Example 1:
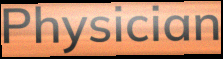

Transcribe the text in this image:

Physician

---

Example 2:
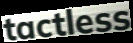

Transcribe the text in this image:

tactless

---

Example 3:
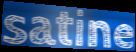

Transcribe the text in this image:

satine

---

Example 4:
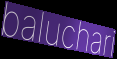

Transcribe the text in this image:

baluchari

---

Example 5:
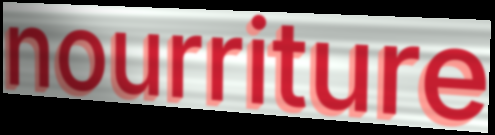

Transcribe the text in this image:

nourriture